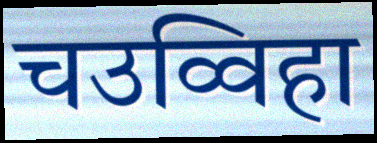
चउव्विहा